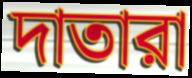
দাতারা